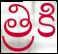
త్రికి